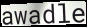
awadle